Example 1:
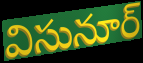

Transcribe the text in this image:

విసునూర్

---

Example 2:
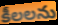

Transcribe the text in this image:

కీలలను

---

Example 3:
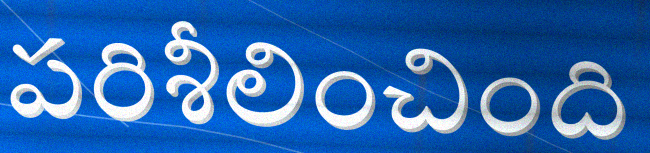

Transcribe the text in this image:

పరిశీలించింది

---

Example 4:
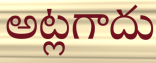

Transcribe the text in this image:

అట్లగాదు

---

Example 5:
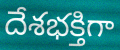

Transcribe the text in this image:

దేశభక్తిగా